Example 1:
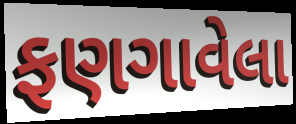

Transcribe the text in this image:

ફણગાવેલા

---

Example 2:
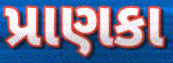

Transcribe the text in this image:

પ્રાણકા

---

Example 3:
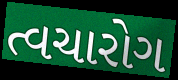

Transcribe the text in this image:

ત્વચારોગ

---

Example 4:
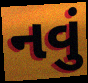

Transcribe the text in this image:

નવું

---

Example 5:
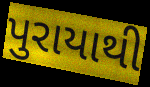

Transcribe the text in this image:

પુરાયાથી